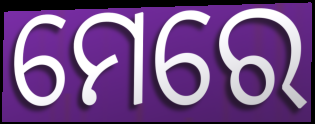
ମେରେ